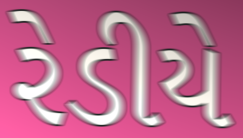
રેડીયે